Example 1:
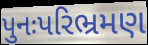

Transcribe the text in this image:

પુનઃપરિભ્રમણ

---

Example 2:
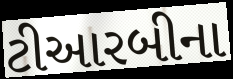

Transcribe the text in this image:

ટીઆરબીના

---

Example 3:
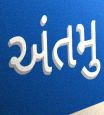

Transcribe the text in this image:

અંતમુ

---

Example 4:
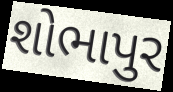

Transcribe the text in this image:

શોભાપુર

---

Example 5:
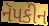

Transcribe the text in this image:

નૅપકીન